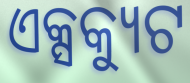
ଏକ୍ସକ୍ୟୁଟ